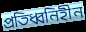
প্রতিধ্বনিহীন